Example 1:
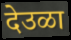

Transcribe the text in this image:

देउळा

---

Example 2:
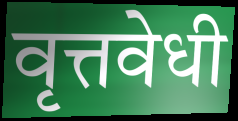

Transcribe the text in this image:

वृत्तवेधी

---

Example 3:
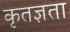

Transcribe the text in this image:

कृतज्ञता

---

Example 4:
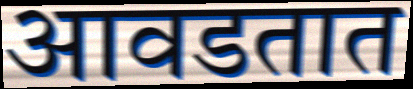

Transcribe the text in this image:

आवडतात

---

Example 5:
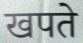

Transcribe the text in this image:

खपते